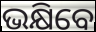
ଭକ୍ଷିବେ